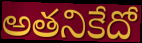
అతనికేదో